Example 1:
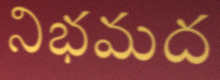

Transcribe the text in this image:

నిభమద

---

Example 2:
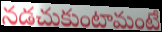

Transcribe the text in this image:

నడచుకుంటామంటే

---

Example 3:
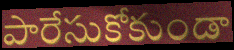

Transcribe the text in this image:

పారేసుకోకుండా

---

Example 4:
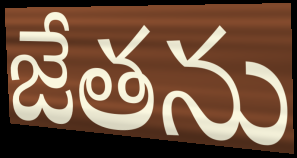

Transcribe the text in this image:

జేతను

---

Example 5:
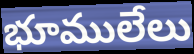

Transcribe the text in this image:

భూములేలు